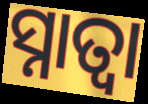
ସ୍ନାତ୍ବା